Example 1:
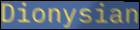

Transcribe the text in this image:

Dionysian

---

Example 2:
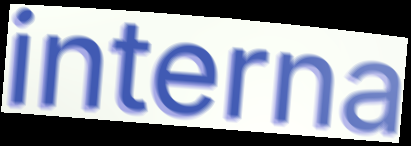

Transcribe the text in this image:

interna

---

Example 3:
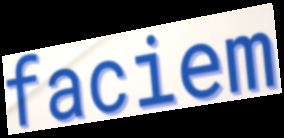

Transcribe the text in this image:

faciem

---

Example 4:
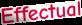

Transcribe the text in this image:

Effectual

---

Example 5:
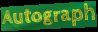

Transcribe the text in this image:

Autograph